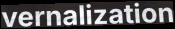
vernalization